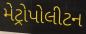
મેટ્રોપોલીટન